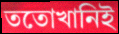
ততোখানিই